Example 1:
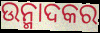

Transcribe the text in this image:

ଉନ୍ମାଦକର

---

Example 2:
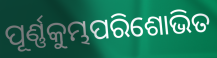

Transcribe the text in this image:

ପୂର୍ଣ୍ଣକୁମ୍ଭପରିଶୋଭିତ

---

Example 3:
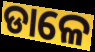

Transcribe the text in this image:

ଡାଳେ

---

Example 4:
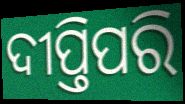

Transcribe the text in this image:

ଦୀପ୍ତିପରି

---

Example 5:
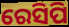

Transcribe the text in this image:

ରେସିପି